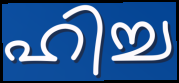
ഹിച്ച